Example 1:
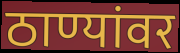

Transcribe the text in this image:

ठाण्यांवर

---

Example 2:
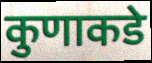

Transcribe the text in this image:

कुणाकडे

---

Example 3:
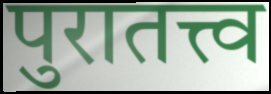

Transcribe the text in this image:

पुरातत्त्व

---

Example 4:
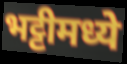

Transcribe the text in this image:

भट्टीमध्ये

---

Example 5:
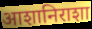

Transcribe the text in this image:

आशानिराशा